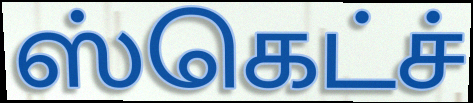
ஸ்கெட்ச்